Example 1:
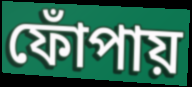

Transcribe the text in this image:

ফোঁপায়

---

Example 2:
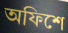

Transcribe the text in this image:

অফিশে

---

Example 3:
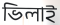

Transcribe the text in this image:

ভিলাই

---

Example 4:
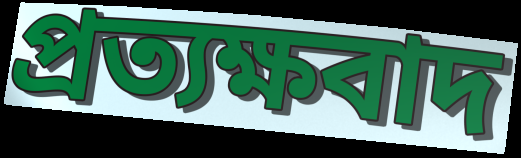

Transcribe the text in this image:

প্রত্যক্ষবাদ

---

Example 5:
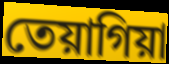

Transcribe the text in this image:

তেয়াগিয়া